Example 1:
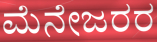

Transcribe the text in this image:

ಮೆನೇಜರರ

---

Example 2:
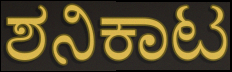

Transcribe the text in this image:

ಶನಿಕಾಟ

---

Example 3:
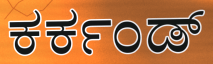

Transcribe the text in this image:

ಕರ್ಕಂಡ್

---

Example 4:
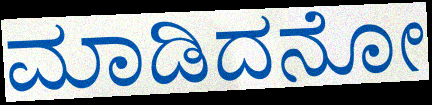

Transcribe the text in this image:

ಮಾಡಿದನೋ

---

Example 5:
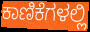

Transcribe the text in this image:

ಕಾಣಿಕೆಗಳಲ್ಲಿ